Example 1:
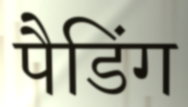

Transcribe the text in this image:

पैडिंग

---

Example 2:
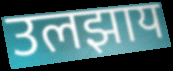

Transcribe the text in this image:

उलझाय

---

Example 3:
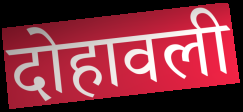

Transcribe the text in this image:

दोहावली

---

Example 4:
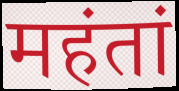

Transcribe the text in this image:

महंतां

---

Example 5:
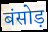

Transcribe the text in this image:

बंसोड़